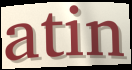
atin